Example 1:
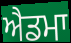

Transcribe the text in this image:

ਐਡਮਾ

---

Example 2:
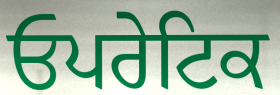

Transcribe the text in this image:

ਓਪਰੇਟਿਕ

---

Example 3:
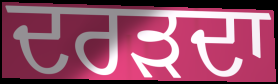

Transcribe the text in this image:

ਦਰੜਦਾ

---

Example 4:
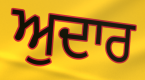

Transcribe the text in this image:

ਅੁਦਾਰ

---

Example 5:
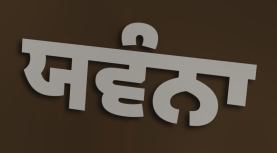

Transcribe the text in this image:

ਯਵੰਨਾ